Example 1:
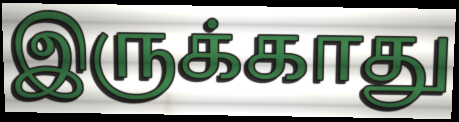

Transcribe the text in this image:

இருக்காது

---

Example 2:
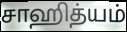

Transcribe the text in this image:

சாஹித்யம்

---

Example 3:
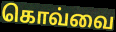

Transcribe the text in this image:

கொவ்வை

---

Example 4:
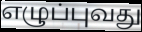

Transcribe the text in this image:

எழுப்புவது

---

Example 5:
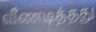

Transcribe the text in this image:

வீணடித்தது